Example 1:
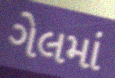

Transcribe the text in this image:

ગેલમાં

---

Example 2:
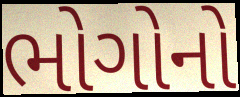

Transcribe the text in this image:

ભોગોનો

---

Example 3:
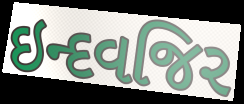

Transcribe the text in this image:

ઇન્દવજિર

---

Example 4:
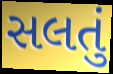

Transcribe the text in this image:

સલતું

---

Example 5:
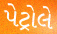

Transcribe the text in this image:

પેટ્રોલે